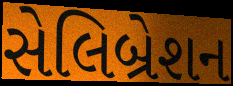
સેલિબ્રેશન